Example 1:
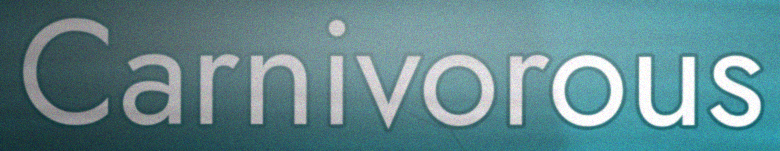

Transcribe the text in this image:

Carnivorous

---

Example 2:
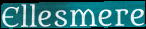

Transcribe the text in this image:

Ellesmere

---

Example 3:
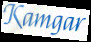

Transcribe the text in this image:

Kamgar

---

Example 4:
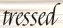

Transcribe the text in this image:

tressed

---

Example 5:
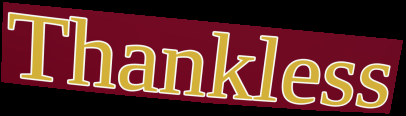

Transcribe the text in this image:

Thankless